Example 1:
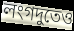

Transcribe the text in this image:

লংগদুতেও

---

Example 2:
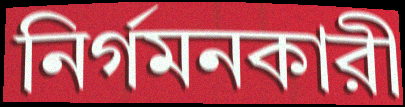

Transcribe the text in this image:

নির্গমনকারী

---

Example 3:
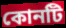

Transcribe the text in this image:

কোনটি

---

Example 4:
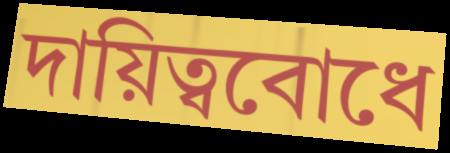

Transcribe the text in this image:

দায়িত্ববোধে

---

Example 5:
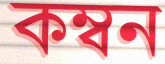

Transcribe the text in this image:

কম্বন